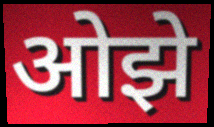
ओझे